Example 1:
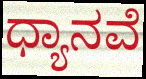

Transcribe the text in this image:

ಧ್ಯಾನವೆ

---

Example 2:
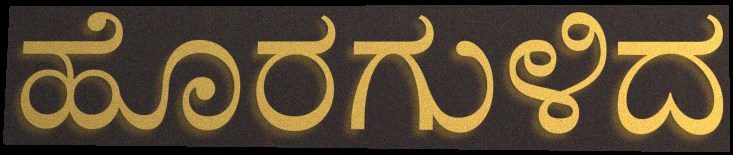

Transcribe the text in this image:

ಹೊರಗುಳಿದ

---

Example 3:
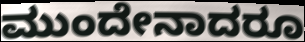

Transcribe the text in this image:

ಮುಂದೇನಾದರೂ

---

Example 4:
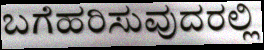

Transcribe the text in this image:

ಬಗೆಹರಿಸುವುದರಲ್ಲಿ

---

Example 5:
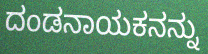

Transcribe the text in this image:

ದಂಡನಾಯಕನನ್ನು